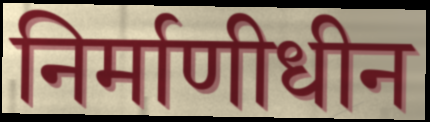
निर्माणीधीन